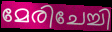
മേരിചേച്ചി